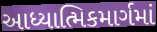
આધ્યાત્મિકમાર્ગમાં